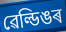
ৱেল্ডিঙৰ